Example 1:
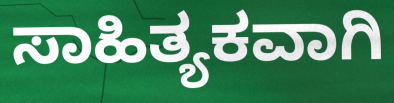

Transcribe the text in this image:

ಸಾಹಿತ್ಯಕವಾಗಿ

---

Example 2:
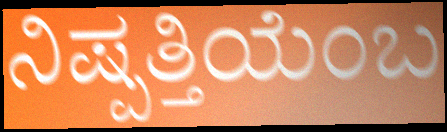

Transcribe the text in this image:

ನಿಷ್ಪತ್ತಿಯೆಂಬ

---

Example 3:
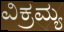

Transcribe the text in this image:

ವಿಕ್ರಮ್ಯ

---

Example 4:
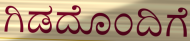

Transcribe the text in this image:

ಗಿಡದೊಂದಿಗೆ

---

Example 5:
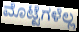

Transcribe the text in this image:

ಮೊಟ್ಟೆಗಳೆಲ್ಲ